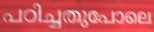
പഠിച്ചതുപോലെ